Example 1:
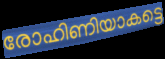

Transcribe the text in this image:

രോഹിണിയാകട്ടെ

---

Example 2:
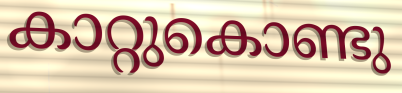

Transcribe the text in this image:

കാറ്റുകൊണ്ടു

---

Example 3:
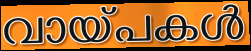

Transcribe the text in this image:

വായ്പകൾ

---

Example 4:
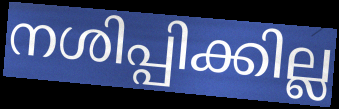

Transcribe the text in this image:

നശിപ്പിക്കില്ല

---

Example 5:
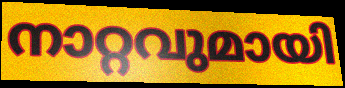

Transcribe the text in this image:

നാറ്റവുമായി